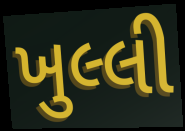
ખુલ્લી